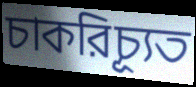
চাকরিচ্যূত